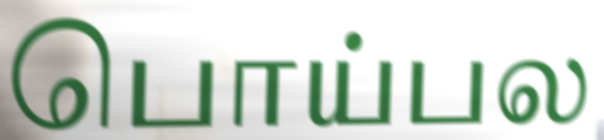
பொய்பல